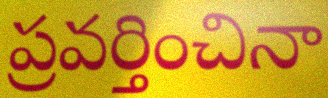
ప్రవర్తించినా